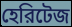
হেরিটেজ